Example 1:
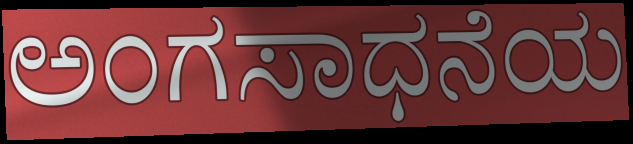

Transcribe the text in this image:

ಅಂಗಸಾಧನೆಯ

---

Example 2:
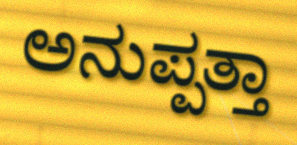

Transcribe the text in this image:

ಅನುಪ್ಪತ್ತಾ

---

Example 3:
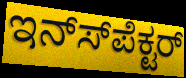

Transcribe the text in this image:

ಇನ್ಸ್‍ಪೆಕ್ಟರ್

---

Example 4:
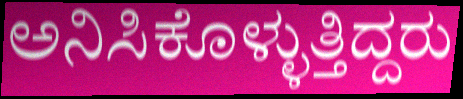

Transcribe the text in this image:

ಅನಿಸಿಕೊಳ್ಳುತ್ತಿದ್ದರು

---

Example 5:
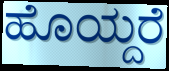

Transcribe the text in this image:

ಹೊಯ್ದರೆ